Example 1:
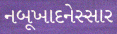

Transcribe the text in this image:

નબૂખાદનેસ્સાર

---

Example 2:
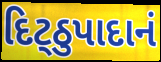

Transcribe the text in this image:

દિટ્ઠુપાદાનં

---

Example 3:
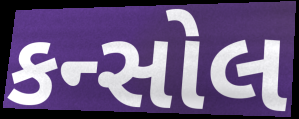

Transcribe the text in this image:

કન્સોલ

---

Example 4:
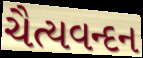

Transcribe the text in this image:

ચૈત્યવન્દન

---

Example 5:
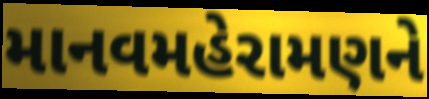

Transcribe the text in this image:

માનવમહેરામણને